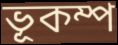
ভূকম্প